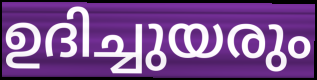
ഉദിച്ചുയരും